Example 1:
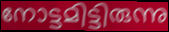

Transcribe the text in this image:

നോട്ടമിട്ടിരുന്നു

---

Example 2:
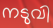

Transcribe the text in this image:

നടുവി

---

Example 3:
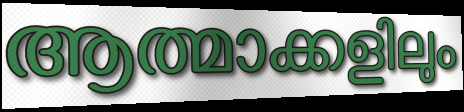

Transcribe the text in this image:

ആത്മാക്കളിലും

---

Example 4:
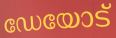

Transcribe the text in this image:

ഡേയോട്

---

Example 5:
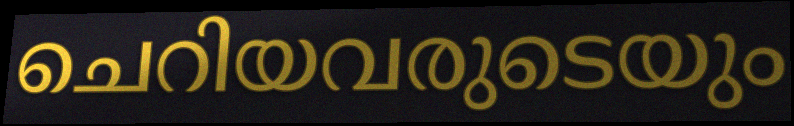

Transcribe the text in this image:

ചെറിയവരുടെയും